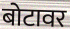
बोटावर